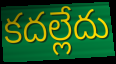
కదల్లేదు